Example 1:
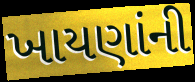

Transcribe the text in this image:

ખાયણાંની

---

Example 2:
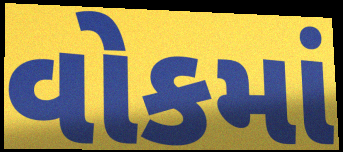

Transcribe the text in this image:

વોકમાં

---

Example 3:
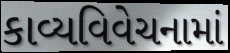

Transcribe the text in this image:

કાવ્યવિવેચનામાં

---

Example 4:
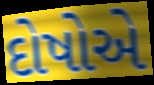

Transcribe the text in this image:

દોષોએ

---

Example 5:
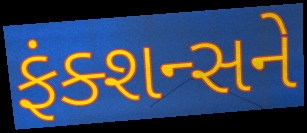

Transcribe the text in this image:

ફંક્શન્સને